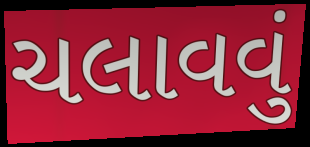
ચલાવવું